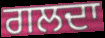
ਗਲਦਾ